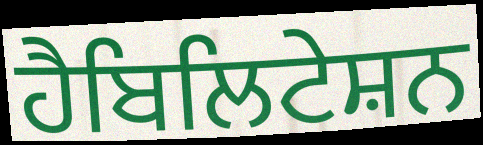
ਹੈਬਿਲਿਟੇਸ਼ਨ